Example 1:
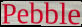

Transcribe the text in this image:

Pebble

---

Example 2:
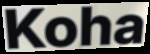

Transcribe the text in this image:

Koha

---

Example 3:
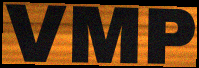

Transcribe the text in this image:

VMP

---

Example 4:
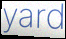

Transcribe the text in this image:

yard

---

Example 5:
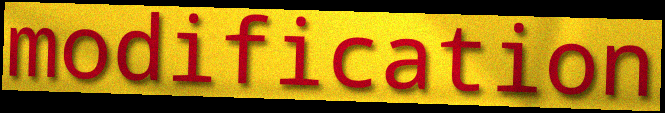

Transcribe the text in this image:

modification